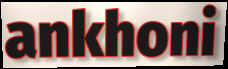
ankhoni